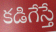
కడిగేస్తే